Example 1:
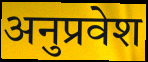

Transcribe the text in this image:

अनुप्रवेश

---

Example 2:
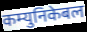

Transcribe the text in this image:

कम्युनिकेबल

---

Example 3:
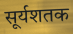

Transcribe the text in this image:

सूर्यशतक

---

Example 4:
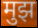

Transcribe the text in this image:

मुझ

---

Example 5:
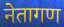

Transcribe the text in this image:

नेतागण